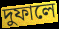
দুফালে